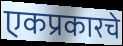
एकप्रकारचे